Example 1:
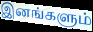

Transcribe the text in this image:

இனங்களும்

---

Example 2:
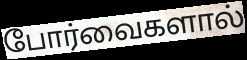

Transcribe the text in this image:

போர்வைகளால்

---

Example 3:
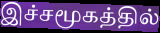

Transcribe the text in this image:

இச்சமூகத்தில்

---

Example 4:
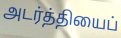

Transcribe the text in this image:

அடர்த்தியைப்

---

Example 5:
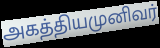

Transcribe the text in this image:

அகத்தியமுனிவர்